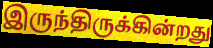
இருந்திருக்கின்றது